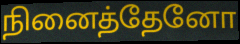
நினைத்தேனோ